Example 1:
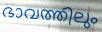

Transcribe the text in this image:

ഭാവത്തിലും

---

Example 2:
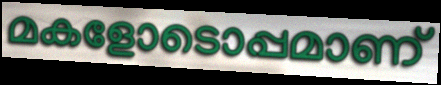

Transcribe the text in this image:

മകളോടൊപ്പമാണ്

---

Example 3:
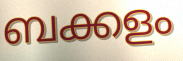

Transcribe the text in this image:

ബക്കളം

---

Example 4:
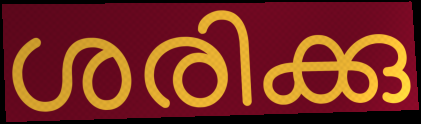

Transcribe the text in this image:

ശരിക്കു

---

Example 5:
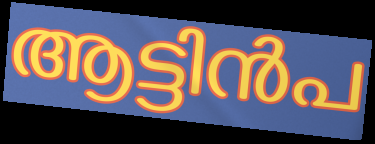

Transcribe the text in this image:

ആട്ടിൻപ